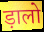
ड़ालो